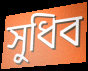
সুধিব